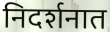
निदर्शनात